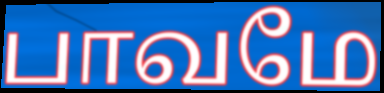
பாவமே